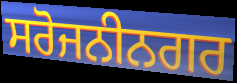
ਸਰੋਜਨੀਨਗਰ